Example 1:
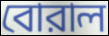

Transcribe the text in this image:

বোরাল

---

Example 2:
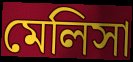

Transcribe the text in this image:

মেলিসা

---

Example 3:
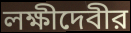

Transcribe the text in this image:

লক্ষীদেবীর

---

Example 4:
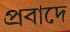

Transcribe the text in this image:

প্রবাদে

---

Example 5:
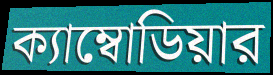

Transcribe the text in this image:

ক্যাম্বোডিয়ার